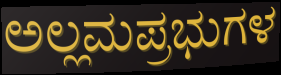
ಅಲ್ಲಮಪ್ರಭುಗಳ